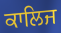
ਕਾਲਿਜ